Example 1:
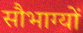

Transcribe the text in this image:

सौभाग्यों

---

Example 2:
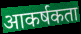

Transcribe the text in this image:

आकर्षकता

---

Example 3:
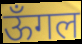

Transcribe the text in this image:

ऊँगल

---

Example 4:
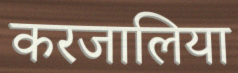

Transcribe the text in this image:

करजालिया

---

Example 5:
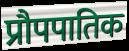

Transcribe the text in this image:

प्रौपपातिक